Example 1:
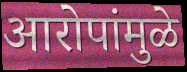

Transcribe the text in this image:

आरोपांमुळे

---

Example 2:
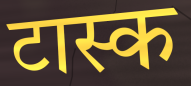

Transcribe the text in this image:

टास्क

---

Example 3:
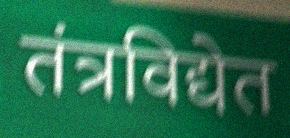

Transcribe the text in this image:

तंत्रविद्येत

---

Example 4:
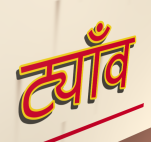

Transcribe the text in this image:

ट्याँव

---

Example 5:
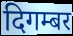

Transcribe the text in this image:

दिगम्बर